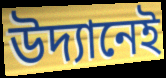
উদ্যানেই